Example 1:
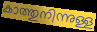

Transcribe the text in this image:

കാത്തുനിന്നുള്ള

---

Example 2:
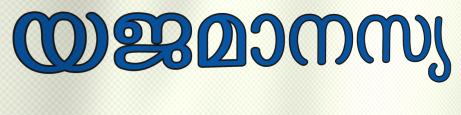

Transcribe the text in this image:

യജമാനസ്യ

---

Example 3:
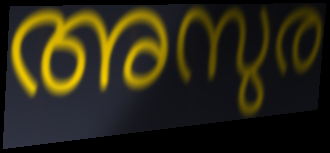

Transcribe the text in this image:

അസുര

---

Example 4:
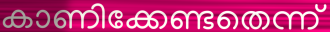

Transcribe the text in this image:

കാണിക്കേണ്ടതെന്ന്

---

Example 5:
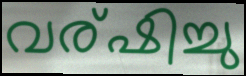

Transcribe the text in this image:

വര്ഷിച്ചു